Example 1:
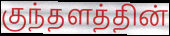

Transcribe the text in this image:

குந்தளத்தின்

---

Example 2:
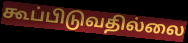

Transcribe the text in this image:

கூப்பிடுவதில்லை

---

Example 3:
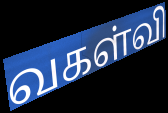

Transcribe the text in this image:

வகள்வி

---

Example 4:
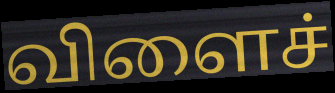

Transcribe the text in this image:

விளைச்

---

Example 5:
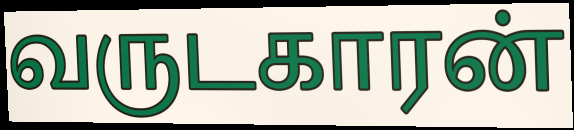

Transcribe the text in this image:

வருடகாரன்